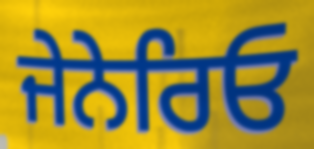
ਜੇਨੇਰਿਓ